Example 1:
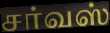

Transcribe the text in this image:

சர்வஸ்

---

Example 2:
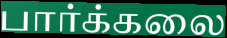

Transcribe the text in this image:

பார்க்கலை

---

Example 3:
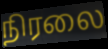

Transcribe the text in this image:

நிரலை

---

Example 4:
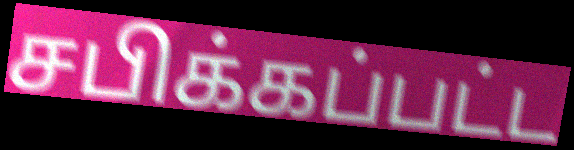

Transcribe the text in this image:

சபிக்கப்பட்ட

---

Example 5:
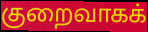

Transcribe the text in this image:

குறைவாகக்